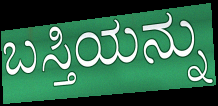
ಬಸ್ತಿಯನ್ನು